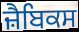
ਜ਼ੈਬਿਕਸ